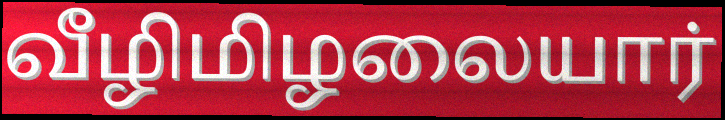
வீழிமிழலையார்